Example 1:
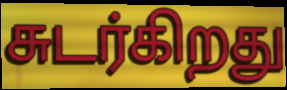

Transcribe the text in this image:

சுடர்கிறது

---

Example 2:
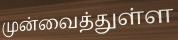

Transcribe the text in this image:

முன்வைத்துள்ள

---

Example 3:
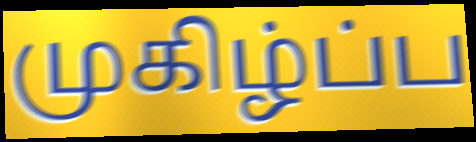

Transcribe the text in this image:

முகிழ்ப்ப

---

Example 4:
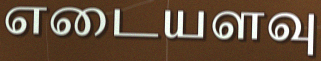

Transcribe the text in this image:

எடையளவு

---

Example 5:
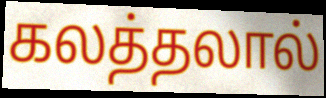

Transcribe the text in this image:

கலத்தலால்